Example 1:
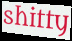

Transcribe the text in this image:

shitty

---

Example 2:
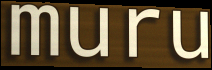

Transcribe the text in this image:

muru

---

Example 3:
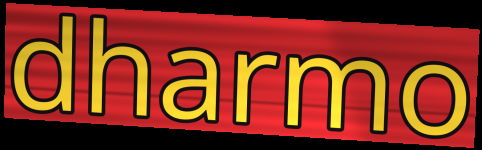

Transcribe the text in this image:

dharmo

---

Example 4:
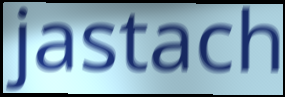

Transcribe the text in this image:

jastach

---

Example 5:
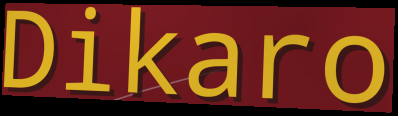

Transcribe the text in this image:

Dikaro